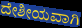
ದೇಶೀಯವಾಗಿ